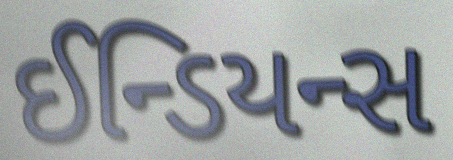
ઈન્ડિયન્સ